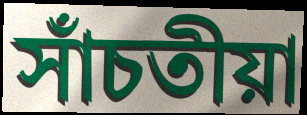
সাঁচতীয়া